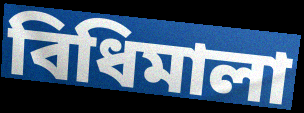
বিধিমালা